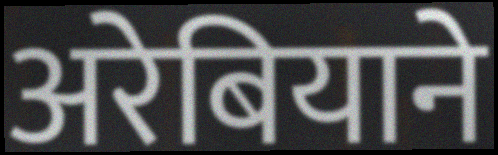
अरेबियाने